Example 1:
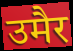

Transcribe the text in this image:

उमैर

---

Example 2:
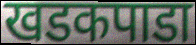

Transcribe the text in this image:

खडकपाडा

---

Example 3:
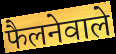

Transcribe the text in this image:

फैलनेवाले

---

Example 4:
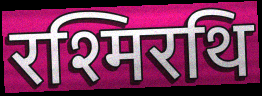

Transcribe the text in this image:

रश्मिरथि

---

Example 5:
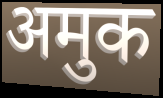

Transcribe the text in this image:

अमुक